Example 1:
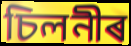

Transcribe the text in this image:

চিলনীৰ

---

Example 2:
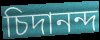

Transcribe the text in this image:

চিদানন্দ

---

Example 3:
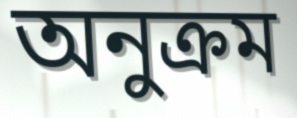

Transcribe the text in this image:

অনুক্ৰম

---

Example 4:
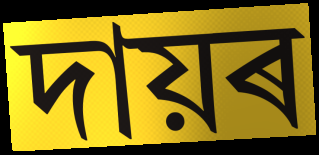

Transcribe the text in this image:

দায়ৰ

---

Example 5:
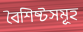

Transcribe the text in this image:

বৈশিষ্টসমূহ